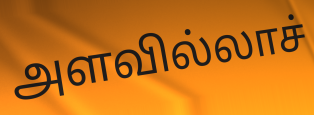
அளவில்லாச்